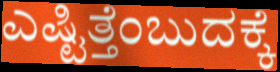
ಎಷ್ಟಿತ್ತೆಂಬುದಕ್ಕೆ